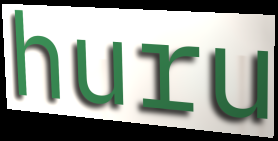
huru